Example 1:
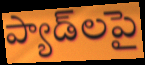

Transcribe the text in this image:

ప్యాడ్‌లపై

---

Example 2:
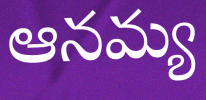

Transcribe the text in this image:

ఆనమ్య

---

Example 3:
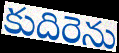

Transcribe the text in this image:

కుదిరెను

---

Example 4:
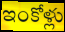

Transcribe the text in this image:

ఇంకోళ్లు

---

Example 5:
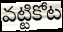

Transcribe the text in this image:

వట్టికోట